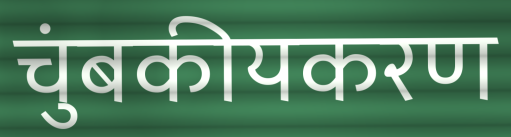
चुंबकीयकरण